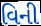
વિની